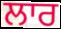
ਲਾਰ